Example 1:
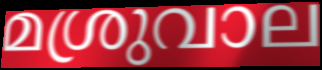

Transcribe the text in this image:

മശ്രുവാല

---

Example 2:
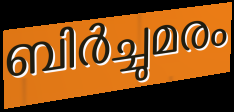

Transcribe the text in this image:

ബിർച്ചുമരം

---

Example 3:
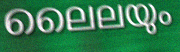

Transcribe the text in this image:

ലൈലയും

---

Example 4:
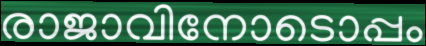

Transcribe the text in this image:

രാജാവിനോടൊപ്പം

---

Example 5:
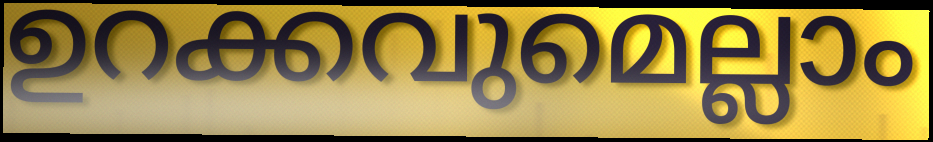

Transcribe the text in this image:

ഉറക്കവുമെല്ലാം